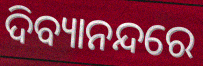
ଦିବ୍ୟାନନ୍ଦରେ